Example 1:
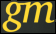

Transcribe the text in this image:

gm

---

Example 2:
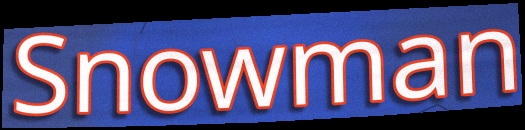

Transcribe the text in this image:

Snowman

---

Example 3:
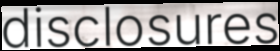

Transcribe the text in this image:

disclosures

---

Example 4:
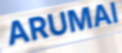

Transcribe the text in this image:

ARUMAI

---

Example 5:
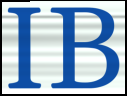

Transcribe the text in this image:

IB